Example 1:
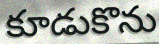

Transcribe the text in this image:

కూడుకొను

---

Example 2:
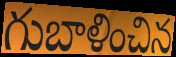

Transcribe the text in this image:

గుబాళించిన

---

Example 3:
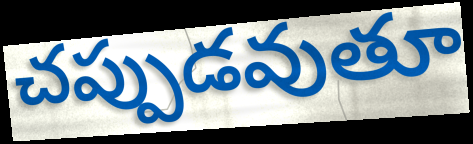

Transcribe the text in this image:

చప్పుడవుతూ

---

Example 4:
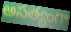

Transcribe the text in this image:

అసత్యంగా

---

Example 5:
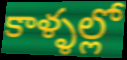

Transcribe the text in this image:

కాళ్ళల్లో